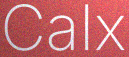
Calx